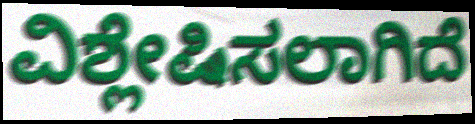
ವಿಶ್ಲೇಷಿಸಲಾಗಿದೆ